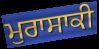
ਮੁਰਾਸਾਕੀ